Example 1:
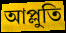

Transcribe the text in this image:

আপ্লুতি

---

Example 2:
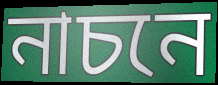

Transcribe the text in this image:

নাচনে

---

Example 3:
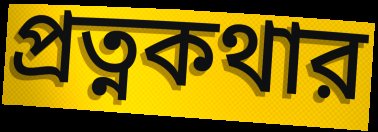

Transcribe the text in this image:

প্রত্নকথার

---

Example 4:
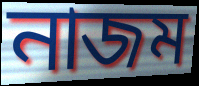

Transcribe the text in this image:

নাজম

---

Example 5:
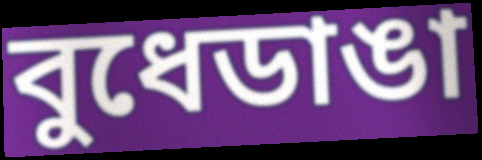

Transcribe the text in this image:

বুধেডাঙা